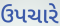
ઉપચારે